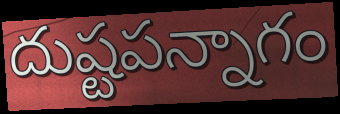
దుష్టపన్నాగం